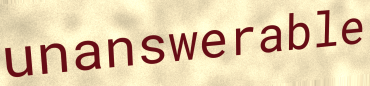
unanswerable